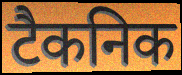
टैकनिक